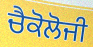
ਚੈਕੋਲੋਜੀ